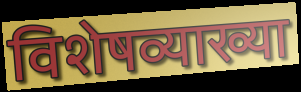
विशेषव्याख्या